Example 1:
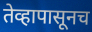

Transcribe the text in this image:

तेव्हापासूनच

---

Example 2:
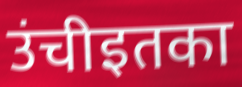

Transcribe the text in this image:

उंचीइतका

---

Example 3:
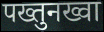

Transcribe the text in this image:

पख्तुनख्वा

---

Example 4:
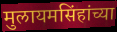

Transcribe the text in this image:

मुलायमसिंहांच्या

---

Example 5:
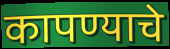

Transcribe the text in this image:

कापण्याचे